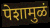
पेशामुळं